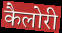
कैलोरी